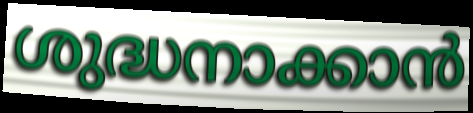
ശുദ്ധനാക്കാൻ